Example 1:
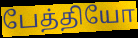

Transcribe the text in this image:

பேத்தியோ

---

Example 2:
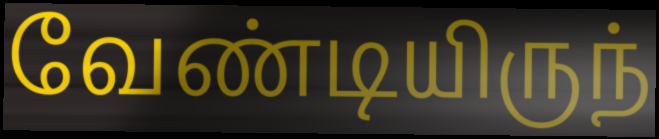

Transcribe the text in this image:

வேண்டியிருந்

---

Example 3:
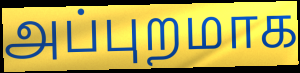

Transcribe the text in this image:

அப்புறமாக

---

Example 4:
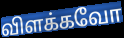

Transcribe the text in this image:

விளக்கவோ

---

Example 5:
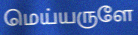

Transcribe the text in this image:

மெய்யருளே